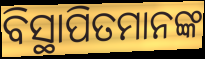
ବିସ୍ଥାପିତମାନଙ୍କ